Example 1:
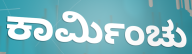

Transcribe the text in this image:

ಕಾರ್ಮಿಂಚು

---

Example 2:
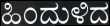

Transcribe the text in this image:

ಹಿಂದುಳಿದ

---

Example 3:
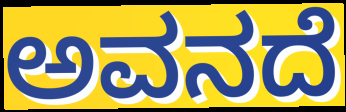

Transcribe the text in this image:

ಅವನದೆ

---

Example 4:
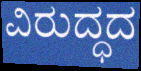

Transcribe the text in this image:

ವಿರುದ್ಧದ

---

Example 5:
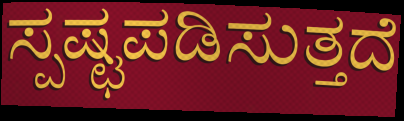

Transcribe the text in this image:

ಸ್ಪಷ್ಟಪಡಿಸುತ್ತದೆ